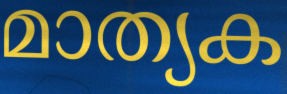
മാത്യക